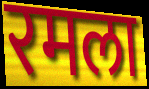
रमला